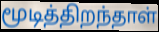
மூடித்திறந்தாள்